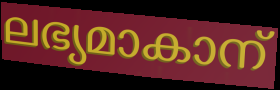
ലഭ്യമാകാന്